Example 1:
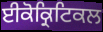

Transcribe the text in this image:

ਈਕੋਕ੍ਰਿਟਿਕਲ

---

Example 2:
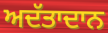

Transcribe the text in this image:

ਅਦੱਤਾਦਾਨ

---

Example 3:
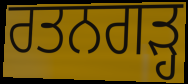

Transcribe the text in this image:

ਰਤਨਗੜ੍ਹ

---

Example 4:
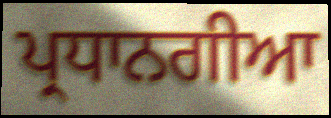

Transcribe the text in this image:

ਪ੍ਰਧਾਨਗੀਆ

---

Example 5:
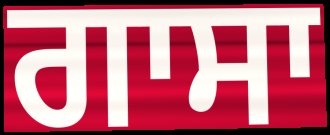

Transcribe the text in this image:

ਗਾਸਾ